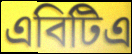
এবিটিএ